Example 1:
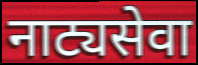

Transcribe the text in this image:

नाट्यसेवा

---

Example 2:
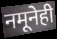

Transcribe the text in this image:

नमूनेही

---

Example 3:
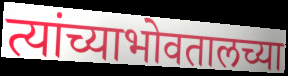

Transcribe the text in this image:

त्यांच्याभोवतालच्या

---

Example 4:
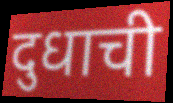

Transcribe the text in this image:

दुधाची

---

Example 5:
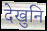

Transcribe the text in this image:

देखुनि